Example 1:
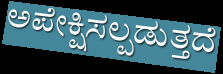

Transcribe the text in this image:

ಅಪೇಕ್ಷಿಸಲ್ಪಡುತ್ತದೆ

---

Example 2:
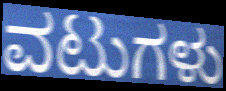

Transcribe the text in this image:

ವಟುಗಳು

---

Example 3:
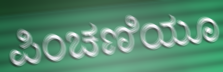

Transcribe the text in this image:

ಪಿಂಚಣಿಯೂ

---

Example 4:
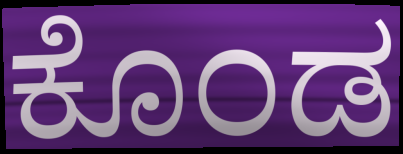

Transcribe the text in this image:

ಕೊಂಡ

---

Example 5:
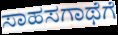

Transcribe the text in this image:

ಸಾಹಸಗಾಥೆಗೆ